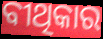
ବୀଥିକାର